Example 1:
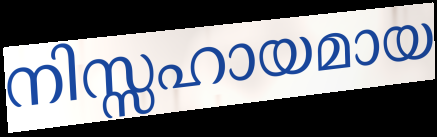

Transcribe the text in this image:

നിസ്സഹായമായ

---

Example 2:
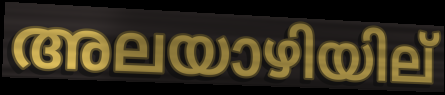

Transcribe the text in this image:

അലയാഴിയില്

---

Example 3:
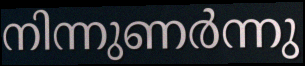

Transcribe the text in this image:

നിന്നുണർന്നു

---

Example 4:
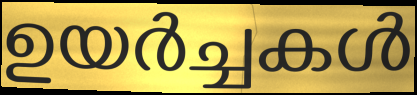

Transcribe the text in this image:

ഉയർച്ചകൾ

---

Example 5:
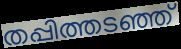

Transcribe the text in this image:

തപ്പിത്തടഞ്ഞ്